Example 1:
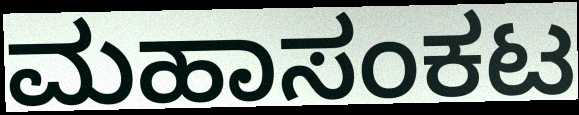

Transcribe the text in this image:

ಮಹಾಸಂಕಟ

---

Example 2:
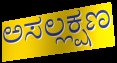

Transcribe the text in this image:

ಅಸಲ್ಲಕ್ಷಣ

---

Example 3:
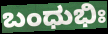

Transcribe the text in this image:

ಬಂಧುಭಿಃ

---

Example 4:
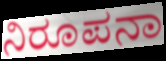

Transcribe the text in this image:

ನಿರೂಪನಾ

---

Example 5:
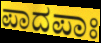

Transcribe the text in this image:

ಪಾದಪಾಃ